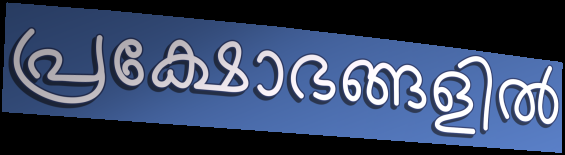
പ്രക്ഷോഭങ്ങളിൽ